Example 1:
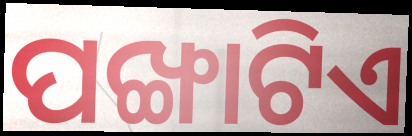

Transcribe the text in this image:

ପଙ୍ଖାଟିଏ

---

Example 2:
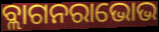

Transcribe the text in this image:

ବ୍ଲାଗନରାଭୋଭ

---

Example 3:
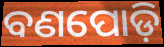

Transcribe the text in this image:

ବଣପୋଡ଼ି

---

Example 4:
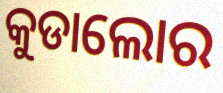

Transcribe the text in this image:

କୁଡାଲୋର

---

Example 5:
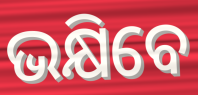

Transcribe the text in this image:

ଭକ୍ଷିବେ